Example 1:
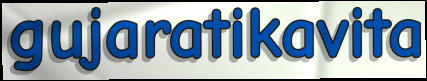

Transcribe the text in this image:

gujaratikavita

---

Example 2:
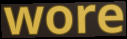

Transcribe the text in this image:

wore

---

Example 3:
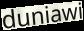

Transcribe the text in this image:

duniawi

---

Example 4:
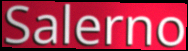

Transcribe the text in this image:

Salerno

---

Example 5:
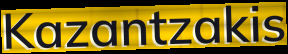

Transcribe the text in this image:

Kazantzakis